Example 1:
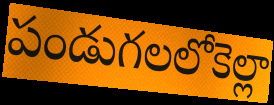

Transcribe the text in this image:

పండుగలలోకెల్లా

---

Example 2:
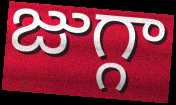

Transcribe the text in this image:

జుగ్గా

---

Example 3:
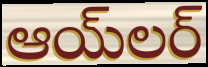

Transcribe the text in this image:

ఆయ్‌లర్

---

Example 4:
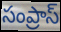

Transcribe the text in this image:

సంప్రాస్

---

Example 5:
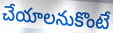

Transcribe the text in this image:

చేయాలనుకొంటే